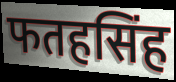
फतहसिंह